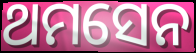
ଥମସେନ